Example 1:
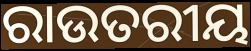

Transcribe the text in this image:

ରାଉତରୀୟ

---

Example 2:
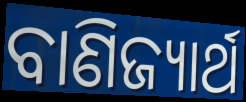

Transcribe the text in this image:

ବାଣିଜ୍ୟାର୍ଥ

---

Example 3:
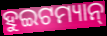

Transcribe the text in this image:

ହୁଇଟମ୍ୟାନ୍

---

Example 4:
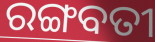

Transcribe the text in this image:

ରଙ୍ଗବତୀ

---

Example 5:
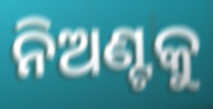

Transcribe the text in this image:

ନିଅଣ୍ଟକୁ